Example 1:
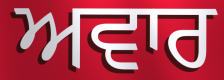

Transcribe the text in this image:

ਅਵਾਰ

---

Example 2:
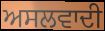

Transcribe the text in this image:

ਅਸਲਵਾਦੀ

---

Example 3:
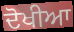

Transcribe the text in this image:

ਦੋਖੀਆ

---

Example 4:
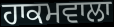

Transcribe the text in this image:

ਹਾਕਮਵਾਲਾ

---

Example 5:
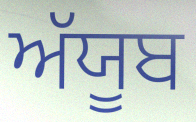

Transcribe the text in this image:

ਅੱਯੂਬ